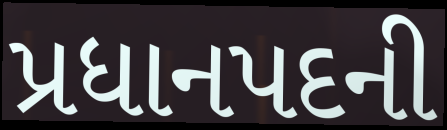
પ્રધાનપદની